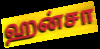
ஹன்சா